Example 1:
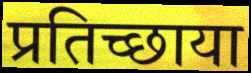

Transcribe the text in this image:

प्रतिच्छाया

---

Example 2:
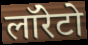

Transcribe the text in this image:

लॉरेटो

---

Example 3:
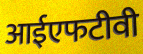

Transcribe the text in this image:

आईएफटीवी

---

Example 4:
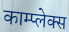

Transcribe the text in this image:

काम्प्लेक्स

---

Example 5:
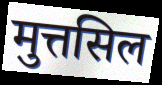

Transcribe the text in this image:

मुत्तसिल